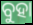
ବୁହା